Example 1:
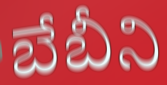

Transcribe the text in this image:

బేబీని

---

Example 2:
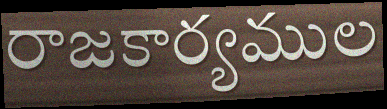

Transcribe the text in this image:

రాజకార్యముల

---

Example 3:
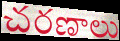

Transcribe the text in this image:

చరణాలు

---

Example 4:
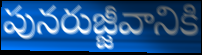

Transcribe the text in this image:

పునరుజ్జీవానికి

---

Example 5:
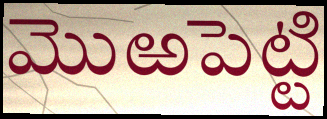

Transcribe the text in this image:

మొఱపెట్టి